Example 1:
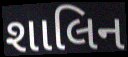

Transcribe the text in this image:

શાલિન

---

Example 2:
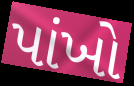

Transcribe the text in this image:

પાંખો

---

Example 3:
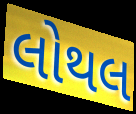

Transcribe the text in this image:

લોથલ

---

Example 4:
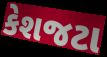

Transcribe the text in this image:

કેશજટા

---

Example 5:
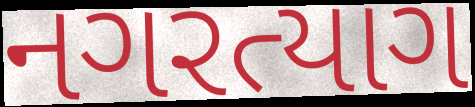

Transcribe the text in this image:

નગરત્યાગ